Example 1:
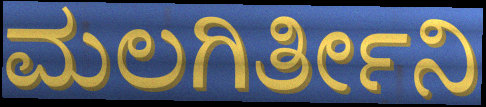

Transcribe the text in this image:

ಮಲಗಿರ್ತೀನಿ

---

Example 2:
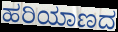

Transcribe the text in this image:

ಹರಿಯಾಣದ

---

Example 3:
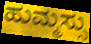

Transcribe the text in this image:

ಹುಮ್ಮಸ್ಸು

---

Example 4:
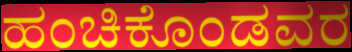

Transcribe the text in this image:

ಹಂಚಿಕೊಂಡವರ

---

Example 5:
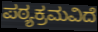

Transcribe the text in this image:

ಪಠ್ಯಕ್ರಮವಿದೆ